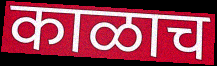
काळाच